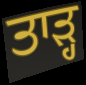
ਤਾੜ੍ਹ